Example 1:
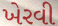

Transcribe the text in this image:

ખેરવી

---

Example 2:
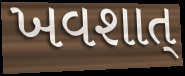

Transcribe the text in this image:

ખવશાત્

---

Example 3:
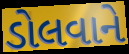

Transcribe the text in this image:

ડોલવાને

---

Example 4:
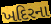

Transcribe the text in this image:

ખદિરના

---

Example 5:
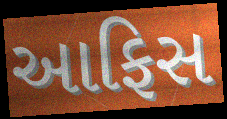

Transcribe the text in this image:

આફિસ